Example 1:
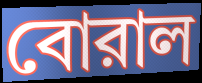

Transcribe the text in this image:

বোরাল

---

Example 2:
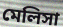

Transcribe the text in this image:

মেলিসা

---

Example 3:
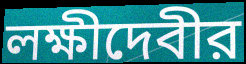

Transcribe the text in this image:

লক্ষীদেবীর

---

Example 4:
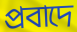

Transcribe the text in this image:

প্রবাদে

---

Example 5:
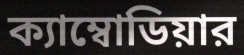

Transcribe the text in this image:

ক্যাম্বোডিয়ার